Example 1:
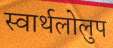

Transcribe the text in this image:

स्वार्थलोलुप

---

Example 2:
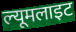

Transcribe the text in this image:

ल्यूमलाइट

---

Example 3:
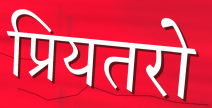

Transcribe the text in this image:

प्रियतरो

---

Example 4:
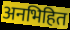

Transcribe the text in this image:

अनभिहित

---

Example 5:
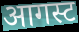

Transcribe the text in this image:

आगस्ट